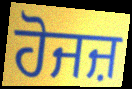
ਹੋਜਜ਼